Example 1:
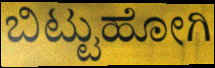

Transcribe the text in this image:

ಬಿಟ್ಟುಹೋಗಿ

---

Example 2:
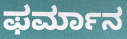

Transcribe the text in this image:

ಫರ್ಮಾನ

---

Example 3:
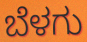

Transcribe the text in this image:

ಬೆಳಗು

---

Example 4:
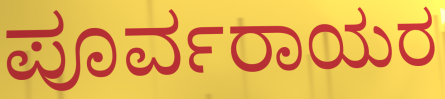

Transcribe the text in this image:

ಪೂರ್ವರಾಯರ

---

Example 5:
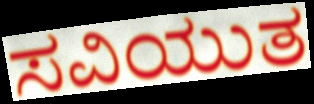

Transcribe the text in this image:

ಸವಿಯುತ